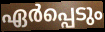
ഏർപ്പെടും